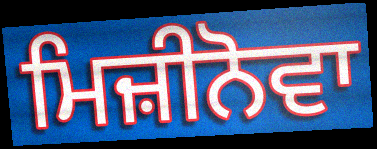
ਮਿਜ਼ੀਨੋਵਾ